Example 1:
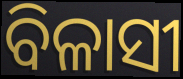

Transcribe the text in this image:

ବିଳାସୀ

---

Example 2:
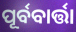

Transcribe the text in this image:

ପୂର୍ବବାର୍ତ୍ତା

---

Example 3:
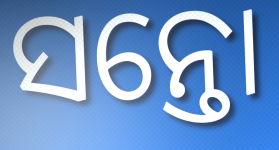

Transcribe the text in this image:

ସନ୍ତୋ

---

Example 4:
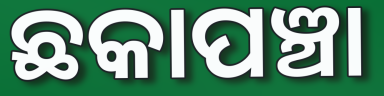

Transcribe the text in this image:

ଛକାପଞ୍ଚା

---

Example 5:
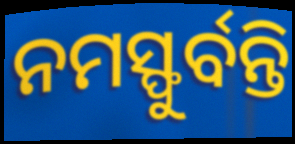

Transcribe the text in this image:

ନମସ୍ଫୁର୍ବନ୍ତି